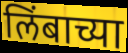
लिंबाच्या